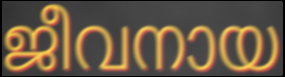
ജീവനായ